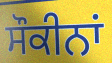
ਸੌਕੀਨਾਂ